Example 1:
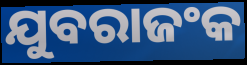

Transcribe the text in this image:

ଯୁବରାଜଂକ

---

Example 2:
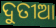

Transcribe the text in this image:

ଦୁତୀଆ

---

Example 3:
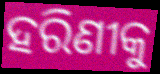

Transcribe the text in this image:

ହରିଣୀକୁ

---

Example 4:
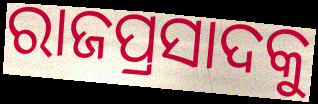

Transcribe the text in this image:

ରାଜପ୍ରସାଦକୁ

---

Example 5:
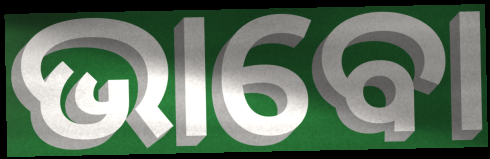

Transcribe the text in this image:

ଭାବୋ